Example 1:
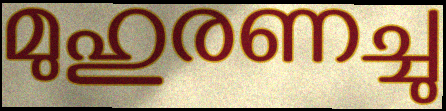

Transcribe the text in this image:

മുഹുരണച്ചു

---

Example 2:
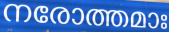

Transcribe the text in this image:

നരോത്തമാഃ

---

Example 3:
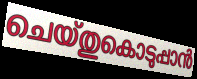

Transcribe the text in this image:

ചെയ്തുകൊടുപ്പാൻ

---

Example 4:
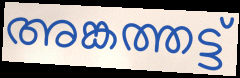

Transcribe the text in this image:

അങ്കത്തട്ട്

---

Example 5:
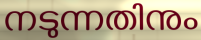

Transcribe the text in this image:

നടുന്നതിനും